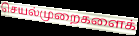
செயல்முறைகளைக்